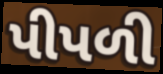
પીપળી